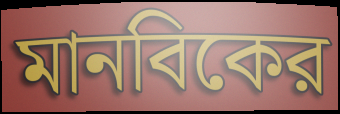
মানবিকের